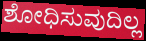
ಶೋಧಿಸುವುದಿಲ್ಲ